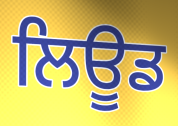
ਲਿਊਡ